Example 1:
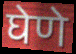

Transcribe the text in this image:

घेणे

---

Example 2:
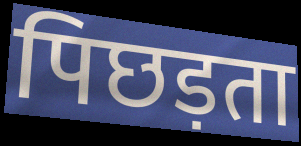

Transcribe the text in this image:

पिछड़ता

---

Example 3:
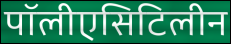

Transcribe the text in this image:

पॉलीएसिटिलीन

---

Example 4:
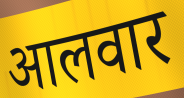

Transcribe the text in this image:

आलवार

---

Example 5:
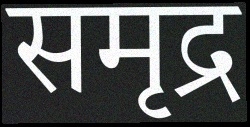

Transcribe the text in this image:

समृद्र